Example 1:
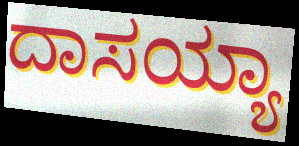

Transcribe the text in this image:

ದಾಸಯ್ಯಾ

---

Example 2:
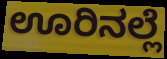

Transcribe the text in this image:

ಊರಿನಲ್ಲೆ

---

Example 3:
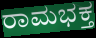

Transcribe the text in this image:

ರಾಮಭಕ್ತ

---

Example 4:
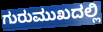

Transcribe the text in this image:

ಗುರುಮುಖದಲ್ಲಿ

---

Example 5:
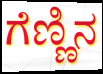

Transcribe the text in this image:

ಗೆಣ್ಣಿನ